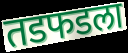
तडफडला